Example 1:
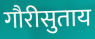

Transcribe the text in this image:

गौरीसुताय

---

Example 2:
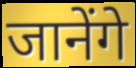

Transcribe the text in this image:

जानेंगे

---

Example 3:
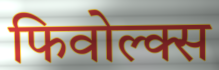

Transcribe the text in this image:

फिवोल्क्स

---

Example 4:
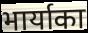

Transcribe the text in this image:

भार्याका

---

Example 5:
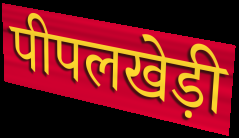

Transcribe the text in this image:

पीपलखेड़ी